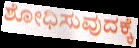
ಶೋಧಿಸುವುದಕ್ಕೆ